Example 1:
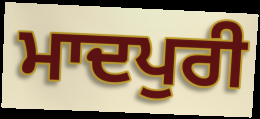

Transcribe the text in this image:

ਮਾਦਪੁਰੀ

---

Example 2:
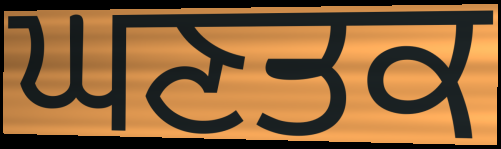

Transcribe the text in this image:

ਘਣਤਕ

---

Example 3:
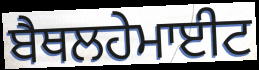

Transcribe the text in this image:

ਬੈਥਲਹੇਮਾਈਟ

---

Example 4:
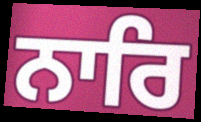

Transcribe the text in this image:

ਨਾਰਿ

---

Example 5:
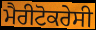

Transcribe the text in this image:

ਮੈਰੀਟੋਕਰੇਸੀ